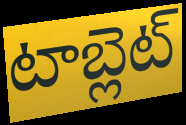
టాబ్లెట్